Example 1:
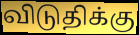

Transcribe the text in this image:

விடுதிக்கு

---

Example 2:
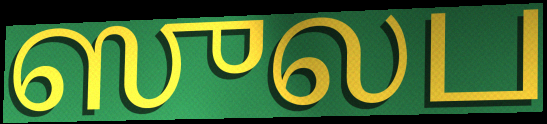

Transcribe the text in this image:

ஸுலப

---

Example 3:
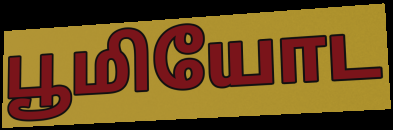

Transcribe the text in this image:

பூமியோட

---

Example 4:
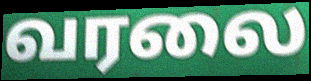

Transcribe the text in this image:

வரலை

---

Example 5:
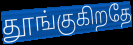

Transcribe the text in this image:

தூங்குகிறதே